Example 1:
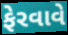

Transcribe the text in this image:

ફેરવાવે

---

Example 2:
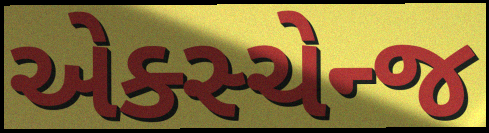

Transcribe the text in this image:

એક્સ્ચેન્જ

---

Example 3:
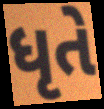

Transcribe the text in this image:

ધૃતે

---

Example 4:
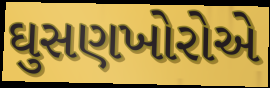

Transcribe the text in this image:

ઘુસણખોરોએ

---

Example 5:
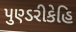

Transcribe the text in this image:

પુણ્ડરીકેહિ